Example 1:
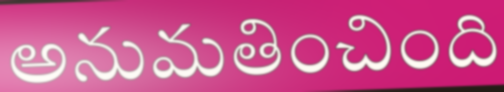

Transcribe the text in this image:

అనుమతించింది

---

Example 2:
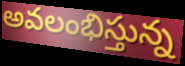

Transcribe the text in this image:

అవలంభిస్తున్న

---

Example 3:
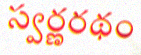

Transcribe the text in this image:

స్వర్ణరథం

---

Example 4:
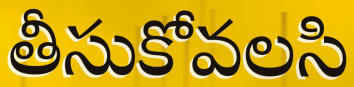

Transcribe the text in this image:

తీసుకోవలసి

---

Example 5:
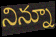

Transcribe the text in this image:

నిన్నూ